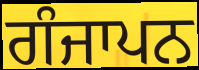
ਗੰਜਾਪਨ